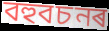
বহুবচনৰ